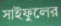
সাইফুলের